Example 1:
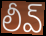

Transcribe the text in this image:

లీవ్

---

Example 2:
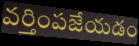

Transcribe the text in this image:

వర్తింపజేయడం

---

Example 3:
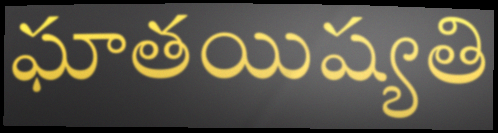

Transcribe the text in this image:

ఘాతయిష్యతి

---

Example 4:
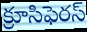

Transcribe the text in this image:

క్రూసిఫెరస్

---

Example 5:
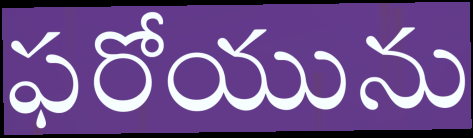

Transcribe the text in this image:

ఫరోయును